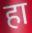
हा